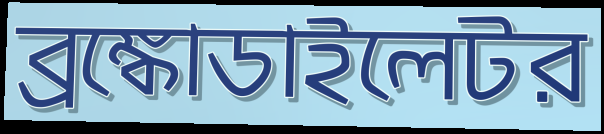
ব্রঙ্কোডাইলেটর